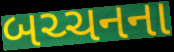
બચ્ચનના